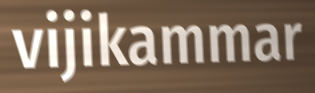
vijikammar